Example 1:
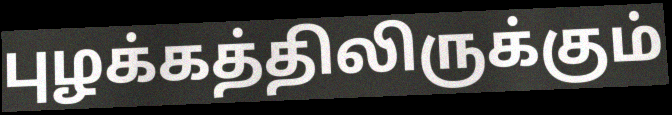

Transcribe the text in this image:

புழக்கத்திலிருக்கும்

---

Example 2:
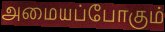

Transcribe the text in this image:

அமையப்போகும்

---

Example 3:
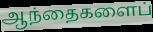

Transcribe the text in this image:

ஆந்தைகளைப்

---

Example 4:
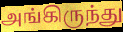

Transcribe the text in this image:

அங்கிருந்து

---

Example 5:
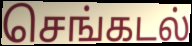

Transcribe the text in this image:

செங்கடல்